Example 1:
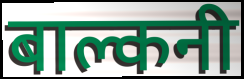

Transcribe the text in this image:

बाल्कनी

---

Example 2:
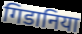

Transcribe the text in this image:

गिडानिया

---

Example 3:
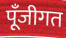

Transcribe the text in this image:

पूँजीगत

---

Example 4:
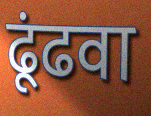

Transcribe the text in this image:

ढूंढवा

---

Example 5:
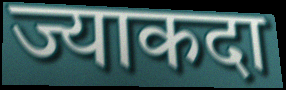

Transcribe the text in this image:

ज्याकदा